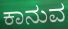
ಕಾನುವ